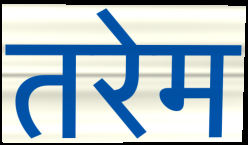
तरेम